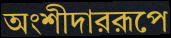
অংশীদাররূপে